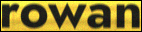
rowan